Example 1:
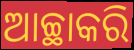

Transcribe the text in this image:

ଆଚ୍ଛାକରି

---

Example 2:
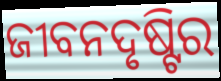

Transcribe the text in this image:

ଜୀବନଦୃଷ୍ଟିର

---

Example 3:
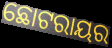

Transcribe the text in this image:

ଛୋଟରାୟର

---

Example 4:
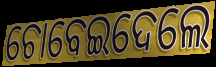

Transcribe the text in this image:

ଚୋବେଇଦେଲେ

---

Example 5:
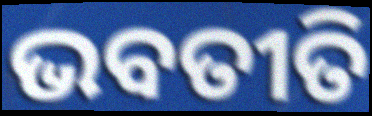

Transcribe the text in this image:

ଭବତୀତି